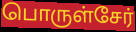
பொருள்சேர்